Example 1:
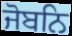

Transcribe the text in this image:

ਜੋਬਨਿ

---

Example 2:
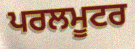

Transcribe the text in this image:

ਪਰਲਮੂਟਰ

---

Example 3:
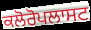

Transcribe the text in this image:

ਕਲੋਰੋਪਲਾਸਟ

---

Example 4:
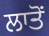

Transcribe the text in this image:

ਲਾਤੋਂ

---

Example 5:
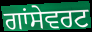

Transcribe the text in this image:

ਗਾਂਸੇਵਰਟ